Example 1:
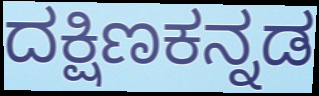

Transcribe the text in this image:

ದಕ್ಷಿಣಕನ್ನಡ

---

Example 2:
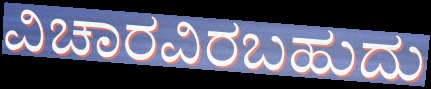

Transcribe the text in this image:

ವಿಚಾರವಿರಬಹುದು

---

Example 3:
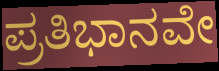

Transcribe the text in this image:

ಪ್ರತಿಭಾನವೇ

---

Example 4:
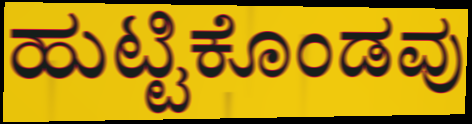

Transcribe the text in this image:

ಹುಟ್ಟಿಕೊಂಡವು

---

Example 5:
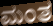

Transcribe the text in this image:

ಮಂತ